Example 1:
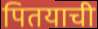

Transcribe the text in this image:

पितयाची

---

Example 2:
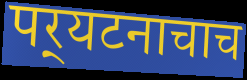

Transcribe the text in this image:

पर्यटनाचाच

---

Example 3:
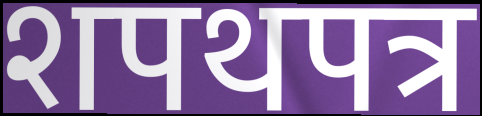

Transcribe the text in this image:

शपथपत्र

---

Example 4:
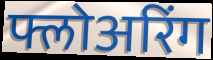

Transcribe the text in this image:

फ्लोअरिंग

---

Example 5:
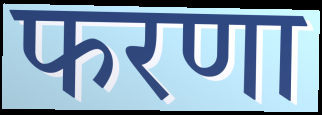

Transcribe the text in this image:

फरणा